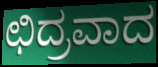
ಛಿದ್ರವಾದ